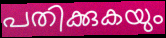
പതിക്കുകയും